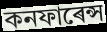
কনফাৰেন্স